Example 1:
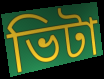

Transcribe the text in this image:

ভিটা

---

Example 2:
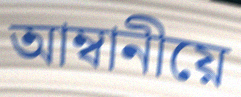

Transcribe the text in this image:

আম্বানীয়ে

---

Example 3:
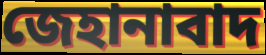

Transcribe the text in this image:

জেহানাবাদ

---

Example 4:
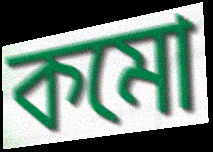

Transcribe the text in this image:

কমো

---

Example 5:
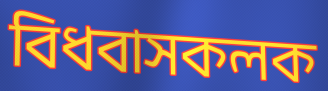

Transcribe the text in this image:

বিধবাসকলক